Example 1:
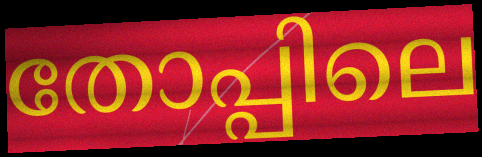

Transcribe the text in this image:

തോപ്പിലെ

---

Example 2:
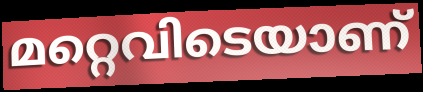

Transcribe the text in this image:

മറ്റെവിടെയാണ്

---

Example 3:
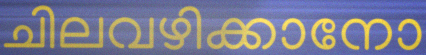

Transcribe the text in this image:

ചിലവഴിക്കാനോ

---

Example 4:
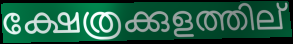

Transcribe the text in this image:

ക്ഷേത്രക്കുളത്തില്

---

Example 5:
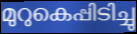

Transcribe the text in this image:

മുറുകെപ്പിടിച്ചു